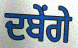
ਦਬੇਂਗੇ